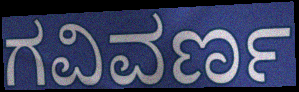
ಗವಿವರ್ಣ